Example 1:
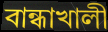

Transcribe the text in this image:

বান্ধাখালী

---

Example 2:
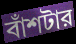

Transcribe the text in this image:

বাঁশটার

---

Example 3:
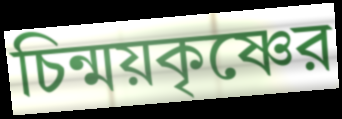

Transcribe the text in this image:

চিন্ময়কৃষ্ণের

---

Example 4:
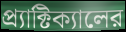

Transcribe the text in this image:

প্র্যাক্টিক্যালের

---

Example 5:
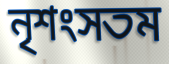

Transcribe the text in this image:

নৃশংসতম